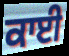
ਕਾਈ